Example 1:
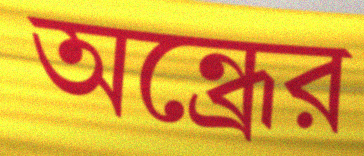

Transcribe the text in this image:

অন্ধ্রের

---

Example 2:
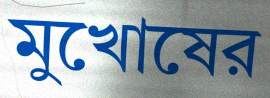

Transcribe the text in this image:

মুখোষের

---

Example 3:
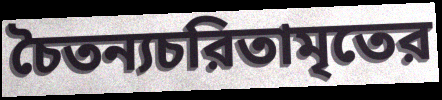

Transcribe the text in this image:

চৈতন্যচরিতামৃতের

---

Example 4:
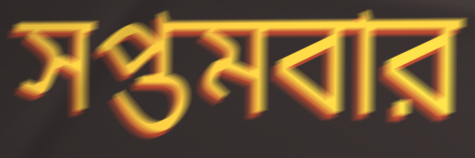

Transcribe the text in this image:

সপ্তমবার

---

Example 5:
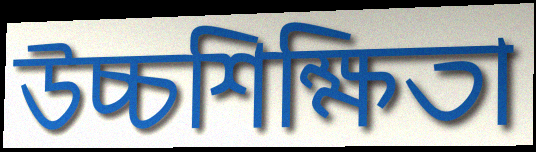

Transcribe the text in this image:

উচ্চশিক্ষিতা